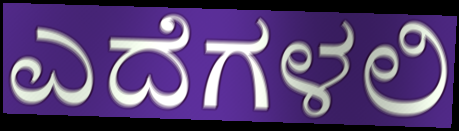
ಎದೆಗಳಲಿ